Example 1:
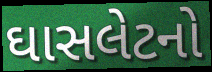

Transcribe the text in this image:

ઘાસલેટનો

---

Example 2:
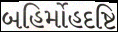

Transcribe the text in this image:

બહિર્મોહદષ્ટિ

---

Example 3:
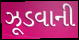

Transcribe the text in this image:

ઝૂડવાની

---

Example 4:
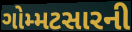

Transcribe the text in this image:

ગોમ્મટસારની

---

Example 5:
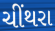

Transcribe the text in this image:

ચીંથરા